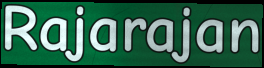
Rajarajan